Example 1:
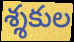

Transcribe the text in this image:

శ్శకుల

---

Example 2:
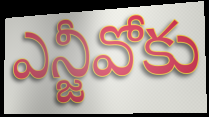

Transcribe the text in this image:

ఎన్జీవోకు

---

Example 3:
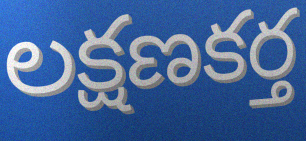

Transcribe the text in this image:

లక్షణకర్త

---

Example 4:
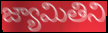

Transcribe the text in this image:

జ్యామితిని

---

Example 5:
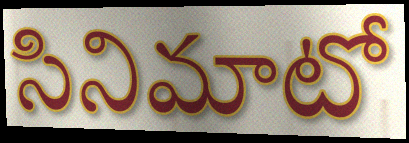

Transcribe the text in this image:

సినిమాటో